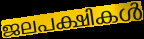
ജലപക്ഷികൾ